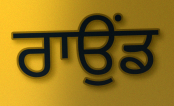
ਰਾਉਂਡ